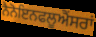
ਨੈਨੋਇਨਫਲੂਐਂਸਰਾਂ